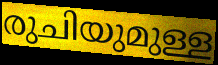
രുചിയുമുള്ള